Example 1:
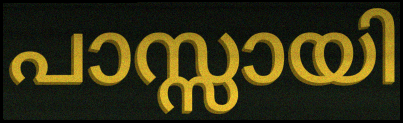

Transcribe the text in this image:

പാസ്സായി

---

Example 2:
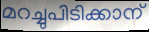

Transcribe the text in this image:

മറച്ചുപിടിക്കാന്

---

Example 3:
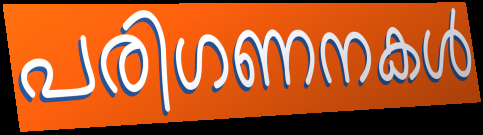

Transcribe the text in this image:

പരിഗണനകൾ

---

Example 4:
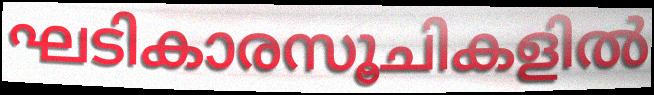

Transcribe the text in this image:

ഘടികാരസൂചികളിൽ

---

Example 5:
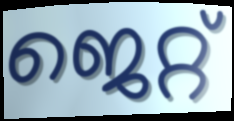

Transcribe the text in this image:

ജെറ്റ്